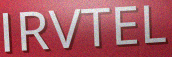
IRVTEL